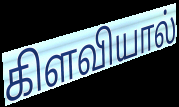
கிளவியால்